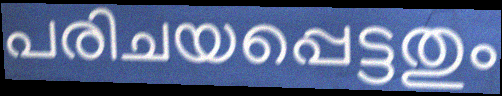
പരിചയപ്പെട്ടതും